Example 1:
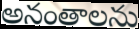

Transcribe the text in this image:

అనంతాలను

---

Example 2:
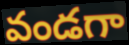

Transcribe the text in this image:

వండగా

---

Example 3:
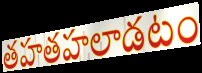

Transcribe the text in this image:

తహతహలాడటం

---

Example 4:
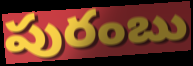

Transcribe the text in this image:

పురంబు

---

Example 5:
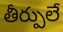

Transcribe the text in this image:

తీర్పులే